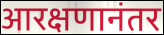
आरक्षणानंतर